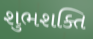
શુભશક્તિ